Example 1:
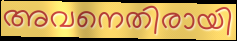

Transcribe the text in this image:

അവനെതിരായി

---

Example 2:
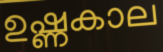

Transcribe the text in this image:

ഉഷ്ണകാല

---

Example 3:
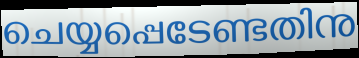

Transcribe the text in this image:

ചെയ്യപ്പെടേണ്ടതിനു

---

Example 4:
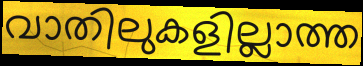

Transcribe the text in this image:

വാതിലുകളില്ലാത്ത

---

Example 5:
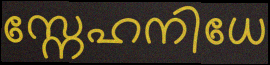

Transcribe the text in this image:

സ്നേഹനിധേ